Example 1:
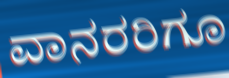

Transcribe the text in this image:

ವಾನರರಿಗೂ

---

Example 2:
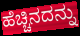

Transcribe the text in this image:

ಹೆಚ್ಚಿನದನ್ನು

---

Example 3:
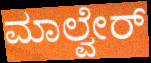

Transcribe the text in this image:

ಮಾಲ್ವೇರ್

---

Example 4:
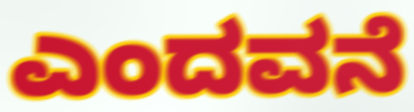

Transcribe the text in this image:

ಎಂದವನೆ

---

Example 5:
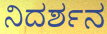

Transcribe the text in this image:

ನಿದರ್ಶನ